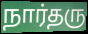
நார்தரு